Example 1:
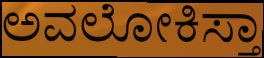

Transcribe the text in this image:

ಅವಲೋಕಿಸ್ತಾ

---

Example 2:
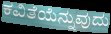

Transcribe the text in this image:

ಕವಿತೆಯೆನ್ನುವುದು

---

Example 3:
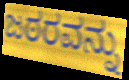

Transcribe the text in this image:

ಜಠರವನ್ನು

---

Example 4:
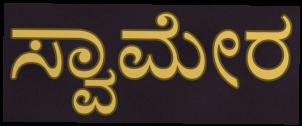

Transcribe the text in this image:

ಸ್ವಾಮೇರ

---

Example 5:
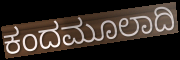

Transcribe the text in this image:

ಕಂದಮೂಲಾದಿ